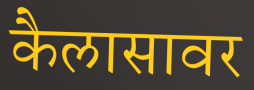
कैलासावर